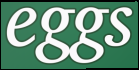
eggs